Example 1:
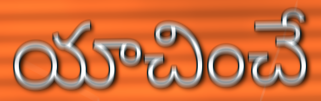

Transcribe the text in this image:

యాచించే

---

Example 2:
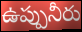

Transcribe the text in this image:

ఉప్పునీరు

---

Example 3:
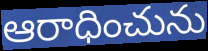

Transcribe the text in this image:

ఆరాధించును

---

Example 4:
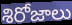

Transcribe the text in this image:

శిరోజాలు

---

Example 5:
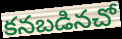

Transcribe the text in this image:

కనబడినచో